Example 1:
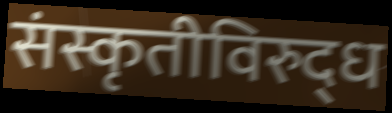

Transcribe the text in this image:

संस्कृतीविरुद्ध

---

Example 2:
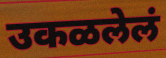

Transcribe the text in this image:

उकळलेलं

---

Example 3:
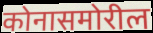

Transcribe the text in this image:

कोनासमोरील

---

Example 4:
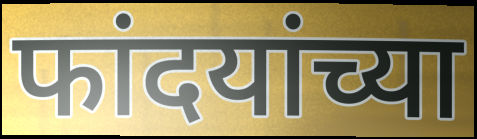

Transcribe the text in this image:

फांदयांच्या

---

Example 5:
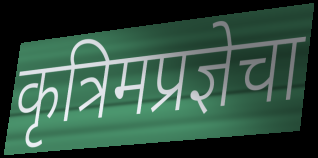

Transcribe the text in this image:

कृत्रिमप्रज्ञेचा